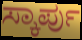
ಸ್ಕಾರ್ಪು